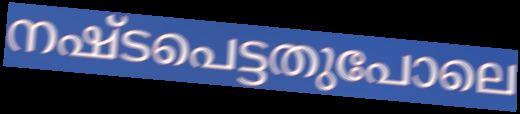
നഷ്ടപെട്ടതുപോലെ